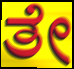
ತೇ